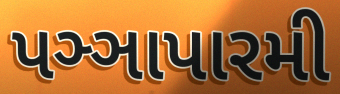
પઞ્ઞાપારમી